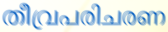
തീവ്രപരിചരണ